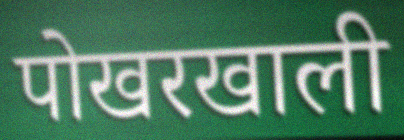
पोखरखाली